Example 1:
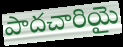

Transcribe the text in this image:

పాదచారియై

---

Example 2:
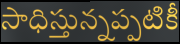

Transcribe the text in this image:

సాధిస్తున్నప్పటికీ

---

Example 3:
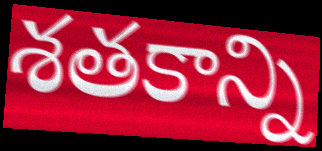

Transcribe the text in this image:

శతకాన్ని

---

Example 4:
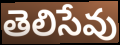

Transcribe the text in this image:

తెలిసేవు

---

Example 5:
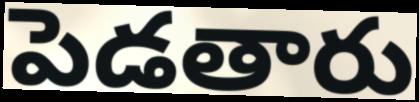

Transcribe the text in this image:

పెడతారు